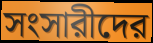
সংসারীদের